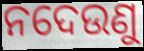
ନଦେଉଣୁ